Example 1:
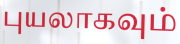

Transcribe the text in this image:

புயலாகவும்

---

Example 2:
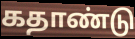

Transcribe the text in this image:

கதாண்டு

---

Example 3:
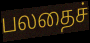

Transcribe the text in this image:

பலதைச்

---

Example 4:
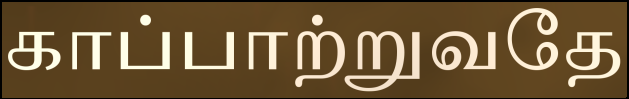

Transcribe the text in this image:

காப்பாற்றுவதே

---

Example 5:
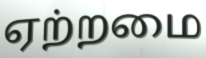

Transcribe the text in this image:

ஏற்றமை